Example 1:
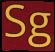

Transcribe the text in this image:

Sg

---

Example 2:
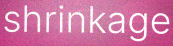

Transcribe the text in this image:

shrinkage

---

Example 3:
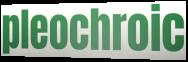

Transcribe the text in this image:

pleochroic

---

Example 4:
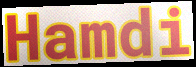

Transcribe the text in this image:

Hamdi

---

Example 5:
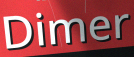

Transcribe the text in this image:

Dimer